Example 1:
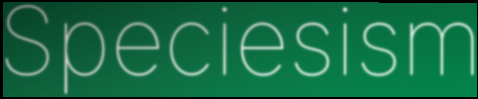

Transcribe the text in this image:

Speciesism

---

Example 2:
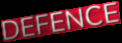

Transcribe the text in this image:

DEFENCE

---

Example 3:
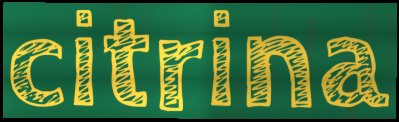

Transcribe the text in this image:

citrina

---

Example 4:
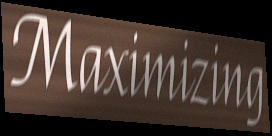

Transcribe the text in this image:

Maximizing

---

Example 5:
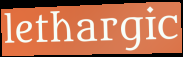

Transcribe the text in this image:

lethargic